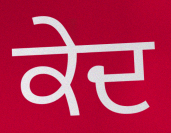
ਕੇਦ